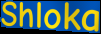
Shloka